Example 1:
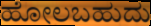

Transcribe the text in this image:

ಹೋಲಬಹುದು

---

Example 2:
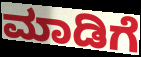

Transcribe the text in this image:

ಮಾಡಿಗೆ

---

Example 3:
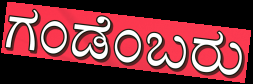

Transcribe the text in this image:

ಗಂಡೆಂಬರು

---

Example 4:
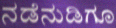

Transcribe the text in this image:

ನಡೆನುಡಿಗೂ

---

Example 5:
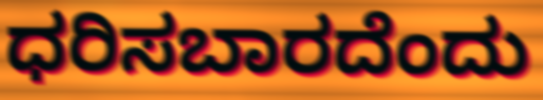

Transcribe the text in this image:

ಧರಿಸಬಾರದೆಂದು